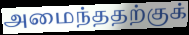
அமைந்ததற்குக்